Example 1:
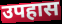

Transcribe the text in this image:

उपहास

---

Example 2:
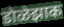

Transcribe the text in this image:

डोळेझाक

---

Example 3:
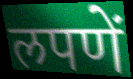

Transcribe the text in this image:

लपणें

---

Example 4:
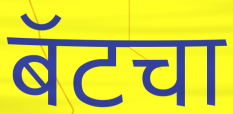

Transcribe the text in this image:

बॅटचा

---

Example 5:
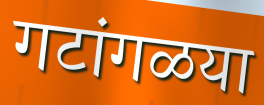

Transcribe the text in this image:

गटांगळया